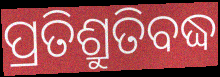
ପ୍ରତିଶ୍ରୁତିବଦ୍ଧ